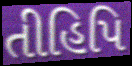
તીહિપિ